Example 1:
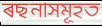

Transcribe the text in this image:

ৰছনাসমূহত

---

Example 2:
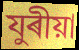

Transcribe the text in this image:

যুৰীয়া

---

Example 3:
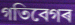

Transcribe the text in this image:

গতিবেগৰ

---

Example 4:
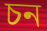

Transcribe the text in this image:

চন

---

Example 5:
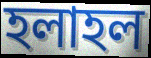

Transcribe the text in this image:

হলাহল